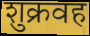
शुक्रवह